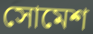
সোমেশ